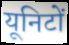
यूनिटों